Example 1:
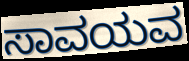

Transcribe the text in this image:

ಸಾವಯವ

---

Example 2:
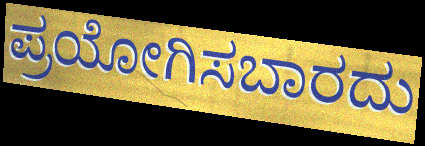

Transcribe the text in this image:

ಪ್ರಯೋಗಿಸಬಾರದು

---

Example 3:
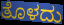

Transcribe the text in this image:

ತೊಳದು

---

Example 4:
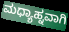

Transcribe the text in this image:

ಮಧ್ಯಾಹ್ನವಾಗಿ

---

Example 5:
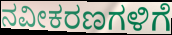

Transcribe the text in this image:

ನವೀಕರಣಗಳಿಗೆ